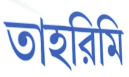
তাহরিমি